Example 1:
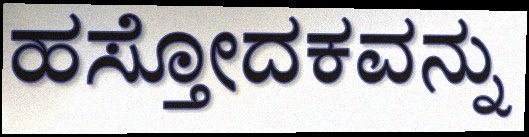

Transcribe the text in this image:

ಹಸ್ತೋದಕವನ್ನು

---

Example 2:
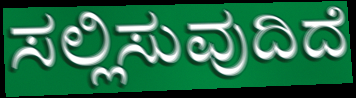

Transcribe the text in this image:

ಸಲ್ಲಿಸುವುದಿದೆ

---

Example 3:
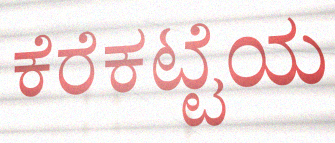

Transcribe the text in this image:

ಕೆರೆಕಟ್ಟೆಯ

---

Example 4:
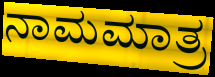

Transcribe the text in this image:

ನಾಮಮಾತ್ರ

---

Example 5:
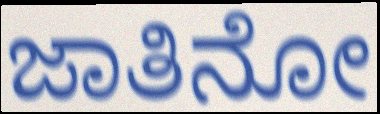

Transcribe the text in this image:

ಜಾತಿನೋ